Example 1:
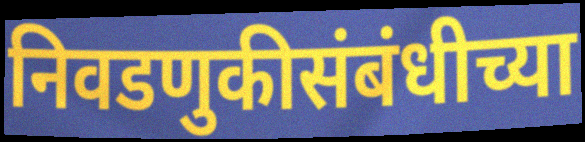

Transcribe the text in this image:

निवडणुकीसंबंधीच्या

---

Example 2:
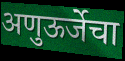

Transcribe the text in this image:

अणुऊर्जेचा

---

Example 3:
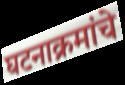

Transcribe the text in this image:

घटनाक्रमांचे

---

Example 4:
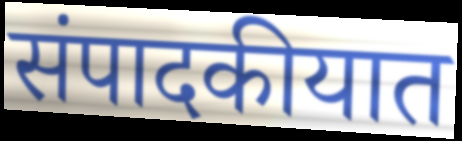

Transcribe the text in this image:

संपादकीयात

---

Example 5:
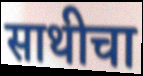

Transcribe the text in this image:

साथीचा